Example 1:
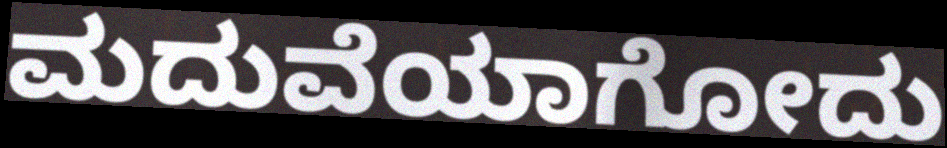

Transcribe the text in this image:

ಮದುವೆಯಾಗೋದು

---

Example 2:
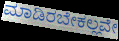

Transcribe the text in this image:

ಮಾಡಿರಬೇಕಲ್ಲವೇ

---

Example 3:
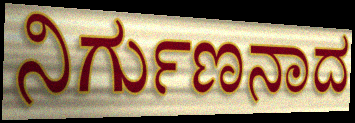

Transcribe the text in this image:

ನಿರ್ಗುಣನಾದ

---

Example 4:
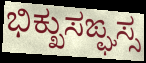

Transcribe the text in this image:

ಭಿಕ್ಖುಸಙ್ಘಸ್ಸ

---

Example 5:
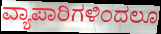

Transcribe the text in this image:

ವ್ಯಾಪಾರಿಗಳಿಂದಲೂ